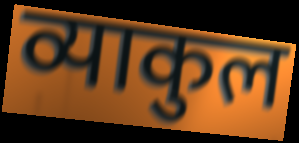
व्याकुल